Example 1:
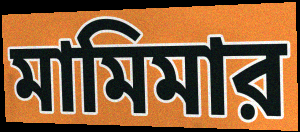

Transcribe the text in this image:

মামিমার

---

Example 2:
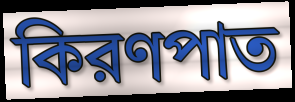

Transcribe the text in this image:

কিরণপাত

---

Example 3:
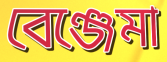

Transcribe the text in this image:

বেঞ্জেমা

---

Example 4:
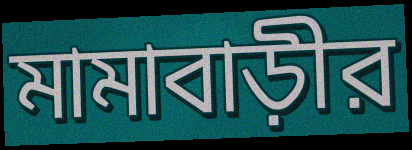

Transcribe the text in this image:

মামাবাড়ীর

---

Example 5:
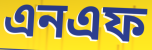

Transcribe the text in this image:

এনএফ